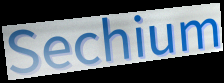
Sechium